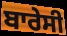
ਬਾਰੇਸੀ